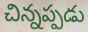
చిన్నప్పడు